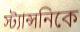
স্ট্যান্সনিকে